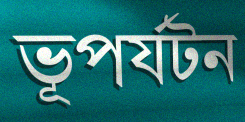
ভূপর্যটন